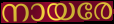
നായരേ